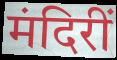
मंदिरीं